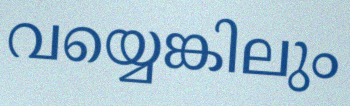
വയ്യെങ്കിലും